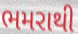
ભમરાથી